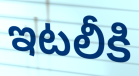
ఇటలీకి